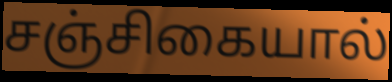
சஞ்சிகையால்